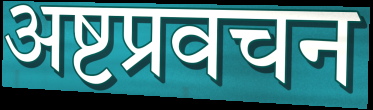
अष्टप्रवचन